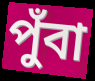
পুঁবা